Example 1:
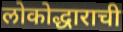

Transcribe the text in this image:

लोकोद्धाराची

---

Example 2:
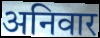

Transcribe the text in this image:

अनिवार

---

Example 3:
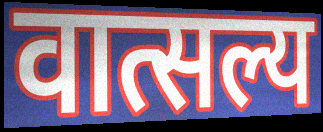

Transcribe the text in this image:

वात्सल्य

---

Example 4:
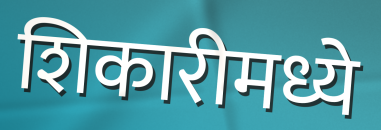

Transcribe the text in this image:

शिकारीमध्ये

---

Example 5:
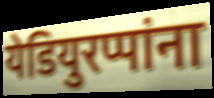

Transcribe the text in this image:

येडियुरप्पांना